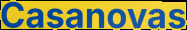
Casanovas